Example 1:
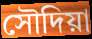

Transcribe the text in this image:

সৌদিয়া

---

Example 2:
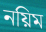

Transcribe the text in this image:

নয়িম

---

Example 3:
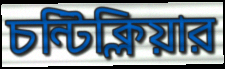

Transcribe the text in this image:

চন্টিক্লিয়ার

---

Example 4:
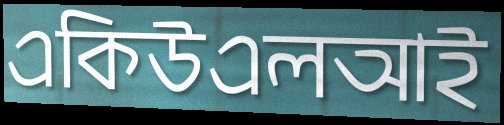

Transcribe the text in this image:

একিউএলআই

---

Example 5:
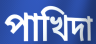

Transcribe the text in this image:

পাখিদা